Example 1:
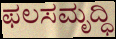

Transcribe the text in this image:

ಫಲಸಮೃದ್ಧಿ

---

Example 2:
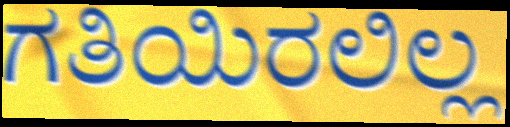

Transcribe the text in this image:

ಗತಿಯಿರಲಿಲ್ಲ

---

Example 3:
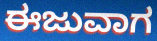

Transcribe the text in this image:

ಈಜುವಾಗ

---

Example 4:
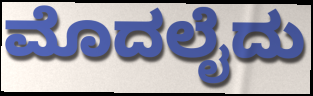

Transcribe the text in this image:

ಮೊದಲೈದು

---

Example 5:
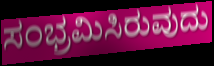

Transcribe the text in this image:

ಸಂಭ್ರಮಿಸಿರುವುದು